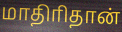
மாதிரிதான்